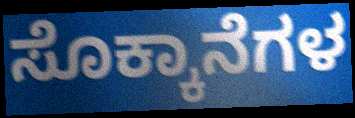
ಸೊಕ್ಕಾನೆಗಳ